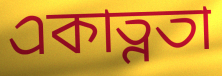
একাত্নতা